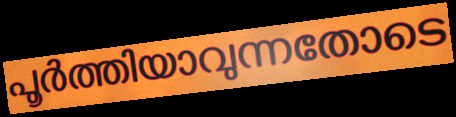
പൂർത്തിയാവുന്നതോടെ